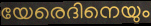
യേരെദിനെയും